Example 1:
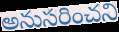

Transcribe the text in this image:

అనుసరించని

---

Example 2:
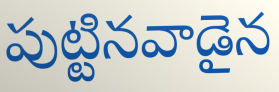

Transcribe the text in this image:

పుట్టినవాడైన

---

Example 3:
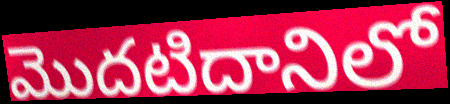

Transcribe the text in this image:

మొదటిదానిలో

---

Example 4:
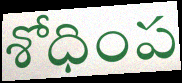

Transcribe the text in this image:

శోధింప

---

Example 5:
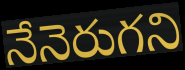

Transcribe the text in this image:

నేనెరుగని